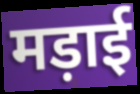
मड़ाई